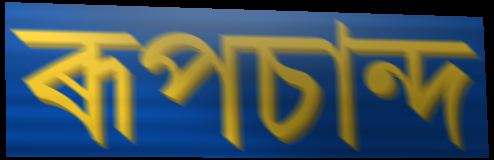
ৰূপচান্দ